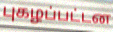
புகழப்பட்டன